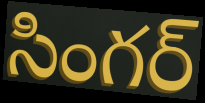
సింగర్